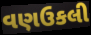
વણઉકલી